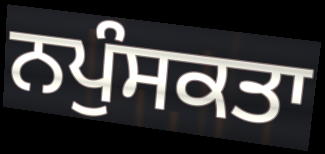
ਨਪੁੰਸਕਤਾ